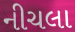
નીચલા